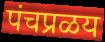
पंचप्रळय